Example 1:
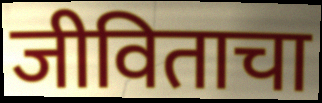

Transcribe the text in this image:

जीविताचा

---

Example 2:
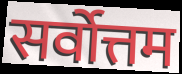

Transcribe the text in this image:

सर्वोत्तम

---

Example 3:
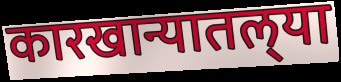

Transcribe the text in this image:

कारखान्यातल्या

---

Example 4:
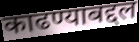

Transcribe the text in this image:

काढण्याबद्दल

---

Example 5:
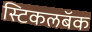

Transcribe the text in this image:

स्टिकलबॅक